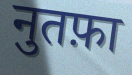
नुतफ़ा